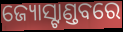
ଜ୍ୟୋସ୍ଟାଣ୍ଡବରେ